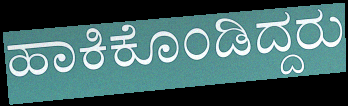
ಹಾಕಿಕೊಂಡಿದ್ದರು